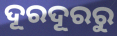
ଦୂରଦୂରରୁ